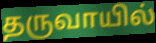
தருவாயில்